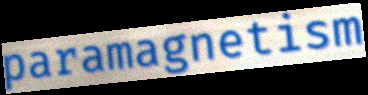
paramagnetism